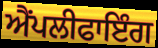
ਐਂਪਲੀਫਾਇੰਗ